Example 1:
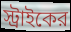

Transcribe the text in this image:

স্ট্রাইকের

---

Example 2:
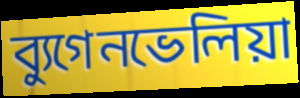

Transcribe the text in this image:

ব্যুগেনভেলিয়া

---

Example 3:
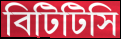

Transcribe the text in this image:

বিটিটিসি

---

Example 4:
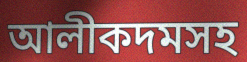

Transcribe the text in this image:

আলীকদমসহ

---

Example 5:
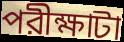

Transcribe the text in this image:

পরীক্ষাটা